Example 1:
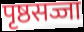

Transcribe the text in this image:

पृष्ठसज्जा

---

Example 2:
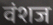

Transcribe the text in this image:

वंशज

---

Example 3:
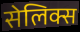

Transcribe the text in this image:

सेलिक्स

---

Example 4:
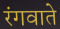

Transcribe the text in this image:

रंगवाते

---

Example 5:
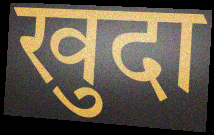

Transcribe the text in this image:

खुदा